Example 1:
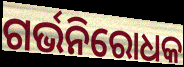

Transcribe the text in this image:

ଗର୍ଭନିରୋଧକ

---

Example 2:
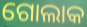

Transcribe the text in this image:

ଗୋଲାକ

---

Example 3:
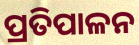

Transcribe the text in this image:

ପ୍ରତିପାଳନ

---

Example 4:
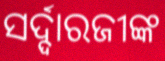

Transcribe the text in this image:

ସର୍ଦ୍ଦାରଜୀଙ୍କ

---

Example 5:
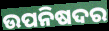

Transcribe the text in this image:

ଉପନିଷଦର